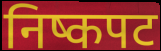
निष्कपट